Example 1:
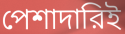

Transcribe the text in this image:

পেশাদারিই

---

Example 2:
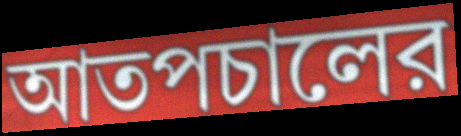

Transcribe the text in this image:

আতপচালের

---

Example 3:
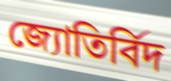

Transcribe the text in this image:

জ্যোতির্বিদ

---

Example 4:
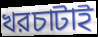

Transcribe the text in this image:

খরচাটাই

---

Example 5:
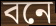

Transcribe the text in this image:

বনে